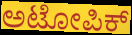
ಅಟೋಪಿಕ್